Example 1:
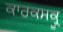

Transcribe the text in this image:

ਕਾਰਕਸਕ੍ਰੂ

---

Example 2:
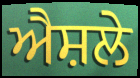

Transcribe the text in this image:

ਐਸ਼ਲੇ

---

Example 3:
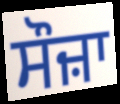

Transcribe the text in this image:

ਸੌਜ਼ਾ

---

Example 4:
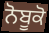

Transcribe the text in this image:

ਨੋਬੂਕੋ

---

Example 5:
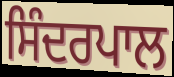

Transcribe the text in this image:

ਸਿੰਦਰਪਾਲ